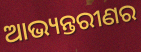
ଆଭ୍ୟନ୍ତରୀଣର